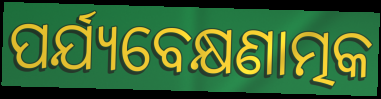
ପର୍ଯ୍ୟବେକ୍ଷଣାତ୍ମକ